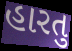
હારતુ